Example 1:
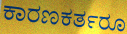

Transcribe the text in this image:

ಕಾರಣಕರ್ತರೂ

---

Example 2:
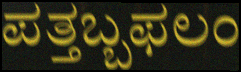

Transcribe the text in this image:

ಪತ್ತಬ್ಬಫಲಂ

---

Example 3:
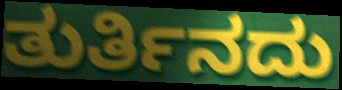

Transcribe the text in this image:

ತುರ್ತಿನದು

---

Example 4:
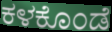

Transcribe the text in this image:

ಕಳಕೊಂಡೆ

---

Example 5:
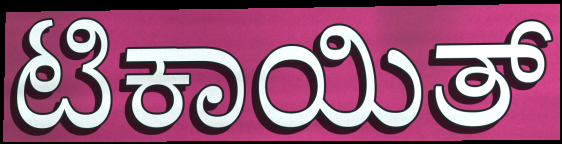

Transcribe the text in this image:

ಟಿಕಾಯಿತ್